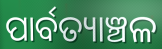
ପାର୍ବତ୍ୟାଞ୍ଚଳ